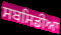
ਸਬਸਿਡੀਆ